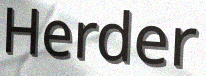
Herder